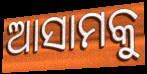
ଆସାମକୁ